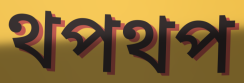
থপথপ